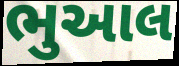
ભુઆલ